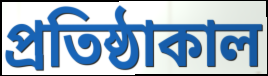
প্রতিষ্ঠাকাল